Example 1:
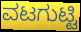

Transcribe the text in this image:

ವಟಗುಟ್ಟಿ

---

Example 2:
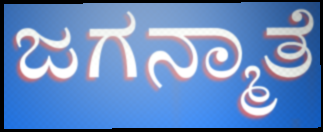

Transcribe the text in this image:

ಜಗನ್ಮಾತೆ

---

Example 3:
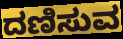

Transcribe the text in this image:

ದಣಿಸುವ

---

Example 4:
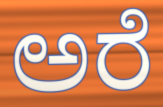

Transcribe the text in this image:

ಅರೆ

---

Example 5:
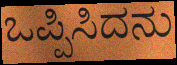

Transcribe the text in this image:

ಒಪ್ಪಿಸಿದನು